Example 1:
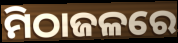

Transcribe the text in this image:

ମିଠାଜଳରେ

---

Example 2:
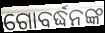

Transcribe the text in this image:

ଗୋବର୍ଦ୍ଧନଙ୍କ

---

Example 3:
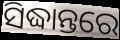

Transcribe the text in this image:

ସିଦ୍ଧାନ୍ତରେ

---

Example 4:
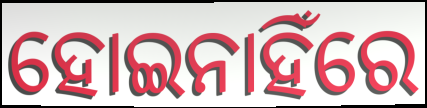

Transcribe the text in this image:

ହୋଇନାହିଁରେ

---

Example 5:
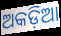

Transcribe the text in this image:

ଅକଡ଼ିଆ